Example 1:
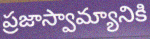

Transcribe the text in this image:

ప్రజాస్వామ్యానికి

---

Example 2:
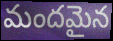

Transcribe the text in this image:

మందమైన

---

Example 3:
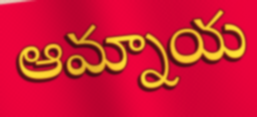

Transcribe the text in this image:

ఆమ్నాయ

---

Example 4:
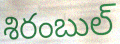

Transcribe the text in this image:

శిరంబుల్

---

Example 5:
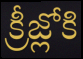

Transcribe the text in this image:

క్రీజ్లోకి